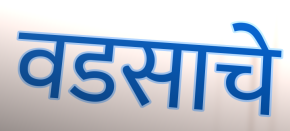
वडसाचे